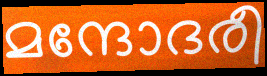
മന്ദോദരീ